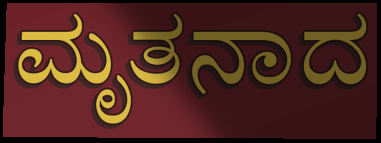
ಮೃತನಾದ